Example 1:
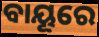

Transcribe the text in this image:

ବାୟୂରେ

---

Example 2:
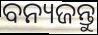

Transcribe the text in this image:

ବନ୍ୟଜନ୍ତୁ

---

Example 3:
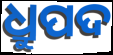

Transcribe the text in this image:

ଧ୍ରୁପଦ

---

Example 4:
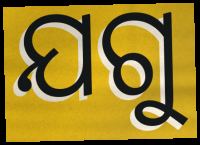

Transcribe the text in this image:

ଯଗୁ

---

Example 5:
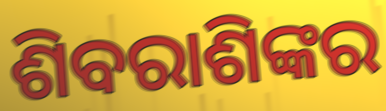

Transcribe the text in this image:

ଶିବରାଶିଙ୍କର